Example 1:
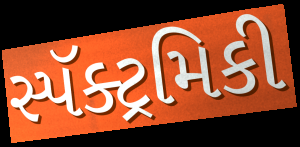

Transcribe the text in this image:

સ્પૅક્ટ્રમિકી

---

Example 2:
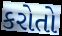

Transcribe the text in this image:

કરોતો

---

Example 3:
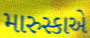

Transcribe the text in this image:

મારુસ્કાએ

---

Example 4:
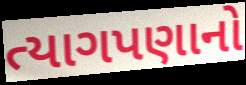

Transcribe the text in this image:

ત્યાગપણાનો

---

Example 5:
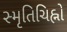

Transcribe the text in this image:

સ્મૃતિચિહ્નો